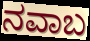
ನವಾಬ